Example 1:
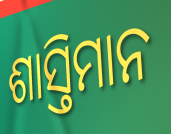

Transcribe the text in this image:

ଶାସ୍ତିମାନ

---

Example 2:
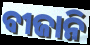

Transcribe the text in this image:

ବୀଜାନି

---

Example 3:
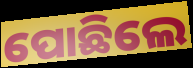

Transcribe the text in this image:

ପୋଛିଲେ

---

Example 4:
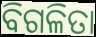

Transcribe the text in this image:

ବିଗଳିତା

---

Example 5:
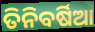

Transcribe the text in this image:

ତିନିବର୍ଷିଆ